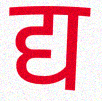
द्य